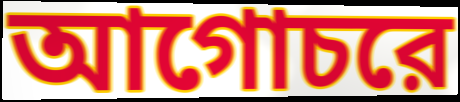
আগোচরে